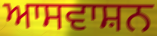
ਆਸਵਾਸ਼ਨ